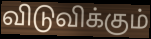
விடுவிக்கும்